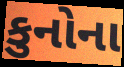
કુનોના